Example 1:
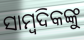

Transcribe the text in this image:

ସାମ୍ବଦିକଙ୍କୁ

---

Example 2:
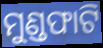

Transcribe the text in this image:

ମୁଣ୍ଡଫାଟି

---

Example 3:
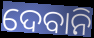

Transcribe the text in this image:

ଦେବାନି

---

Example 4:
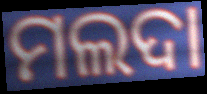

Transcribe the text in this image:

ମଲଦା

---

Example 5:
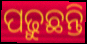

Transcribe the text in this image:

ପଢ଼ୁଛନ୍ତି